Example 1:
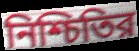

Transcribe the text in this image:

নিশ্চিতির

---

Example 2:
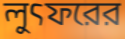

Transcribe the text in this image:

লুৎফরের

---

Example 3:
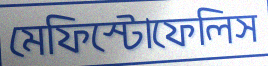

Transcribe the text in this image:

মেফিস্টোফেলিস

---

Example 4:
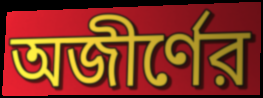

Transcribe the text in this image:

অজীর্ণের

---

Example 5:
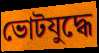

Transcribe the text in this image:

ভোটযুদ্ধে